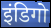
इंडिगो